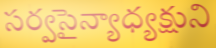
సర్వసైన్యాధ్యక్షుని